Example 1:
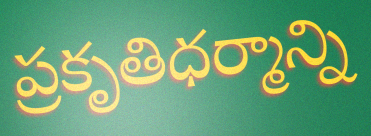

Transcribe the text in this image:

ప్రకృతిధర్మాన్ని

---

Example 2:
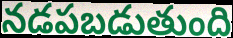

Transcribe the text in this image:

నడపబడుతుంది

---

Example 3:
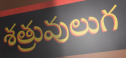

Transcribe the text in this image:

శత్రువులుగ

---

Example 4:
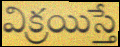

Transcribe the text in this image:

విక్రయిస్తే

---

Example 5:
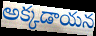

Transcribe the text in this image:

అక్కడాయన